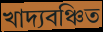
খাদ্যবঞ্চিত